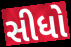
સીધો